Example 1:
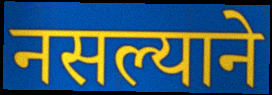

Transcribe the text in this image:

नसल्‍याने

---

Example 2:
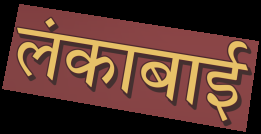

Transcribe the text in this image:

लंकाबाई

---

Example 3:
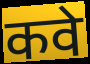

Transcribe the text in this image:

कवे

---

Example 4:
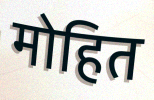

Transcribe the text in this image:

मोहित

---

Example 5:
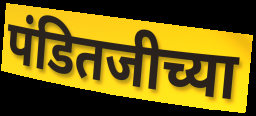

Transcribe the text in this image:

पंडितजीच्या